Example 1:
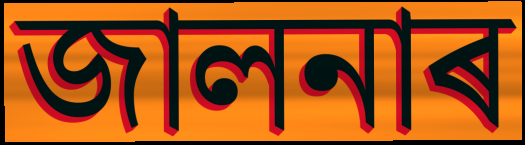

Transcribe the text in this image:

জালনাৰ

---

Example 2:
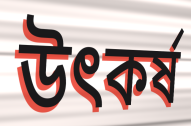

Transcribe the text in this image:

উৎকৰ্ষ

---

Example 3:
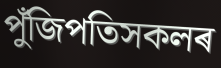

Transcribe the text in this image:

পুঁজিপতিসকলৰ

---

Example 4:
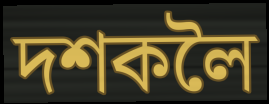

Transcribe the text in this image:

দশকলৈ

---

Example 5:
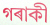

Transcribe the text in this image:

গৰাকী